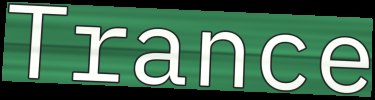
Trance